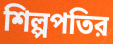
শিল্পপতির